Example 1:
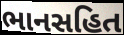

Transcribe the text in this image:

ભાનસહિત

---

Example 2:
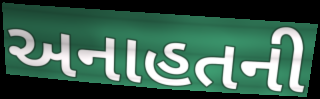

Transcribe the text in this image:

અનાહતની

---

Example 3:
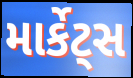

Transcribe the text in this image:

માર્કેટ્સ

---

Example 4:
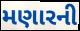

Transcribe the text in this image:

મણારની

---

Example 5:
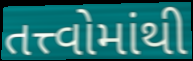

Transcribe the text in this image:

તત્ત્વોમાંથી